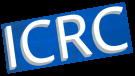
ICRC